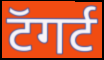
टॅगर्ट